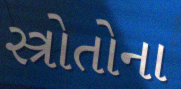
સ્ત્રોતોના